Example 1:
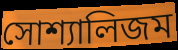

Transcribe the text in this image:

সোশ্যালিজম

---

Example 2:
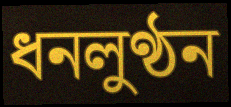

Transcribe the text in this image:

ধনলুণ্ঠন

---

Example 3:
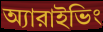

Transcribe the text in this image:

অ্যারাইভিং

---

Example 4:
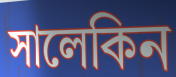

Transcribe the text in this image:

সালেকিন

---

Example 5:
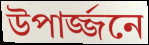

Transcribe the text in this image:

উপার্জ্জনে